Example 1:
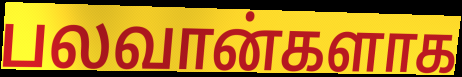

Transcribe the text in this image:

பலவான்களாக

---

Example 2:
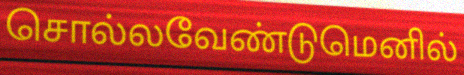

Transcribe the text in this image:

சொல்லவேண்டுமெனில்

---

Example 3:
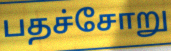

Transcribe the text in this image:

பதச்சோறு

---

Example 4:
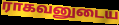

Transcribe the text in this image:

ராகவனுடைய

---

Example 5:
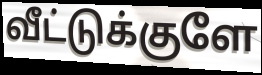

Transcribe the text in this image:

வீட்டுக்குளே